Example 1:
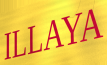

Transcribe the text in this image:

ILLAYA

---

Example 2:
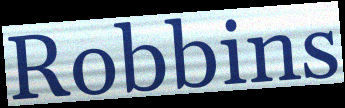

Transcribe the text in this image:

Robbins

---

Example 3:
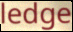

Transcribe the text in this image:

ledge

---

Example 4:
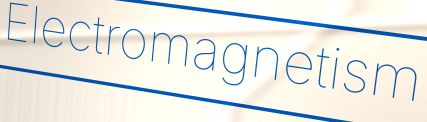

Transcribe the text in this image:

Electromagnetism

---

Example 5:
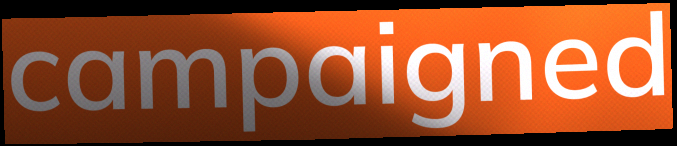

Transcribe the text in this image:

campaigned